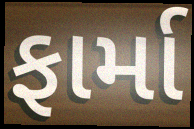
ફાર્મા